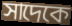
সাদেকে